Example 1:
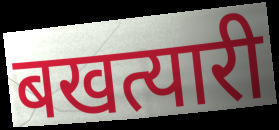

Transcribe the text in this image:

बखत्यारी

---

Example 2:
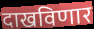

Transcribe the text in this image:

दाखविणार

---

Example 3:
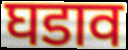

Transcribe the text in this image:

घडाव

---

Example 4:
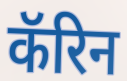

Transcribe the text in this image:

कॅरिन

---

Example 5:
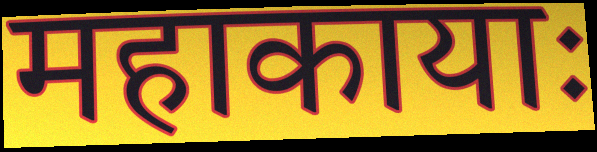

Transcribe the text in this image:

महाकायाः